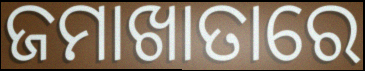
ଜମାଖାତାରେ